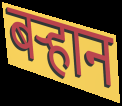
बऱ्हान